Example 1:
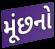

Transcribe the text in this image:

મૂંછનો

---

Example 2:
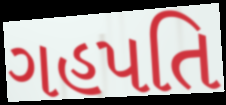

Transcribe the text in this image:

ગહપતિ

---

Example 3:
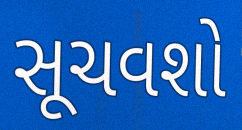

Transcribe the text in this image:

સૂચવશો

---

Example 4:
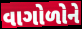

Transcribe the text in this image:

વાગોળોને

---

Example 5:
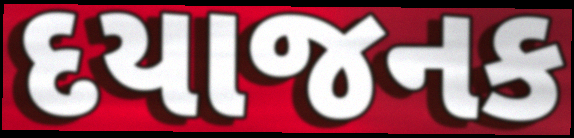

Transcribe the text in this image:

દયાજનક